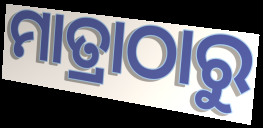
ମାତ୍ରାଠାରୁ